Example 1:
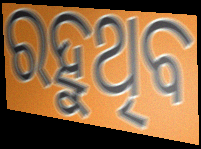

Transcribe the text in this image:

ରହୁଥିବ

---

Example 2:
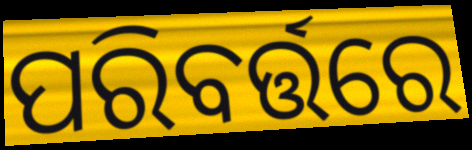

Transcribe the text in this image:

ପରିବର୍ତ୍ତରେ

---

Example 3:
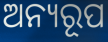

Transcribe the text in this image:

ଅନ୍ୟରୂପ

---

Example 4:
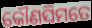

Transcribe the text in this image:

କୌଣସିମତେ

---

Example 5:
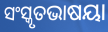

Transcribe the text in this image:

ସଂସ୍କୃତଭାଷୟା